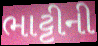
ભાટ્ટીની